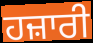
ਹਜ਼ਾਰੀ